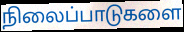
நிலைப்பாடுகளை